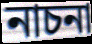
নাচনা